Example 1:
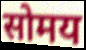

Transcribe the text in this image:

सोमय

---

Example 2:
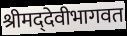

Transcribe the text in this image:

श्रीमद्‌देवीभागवत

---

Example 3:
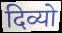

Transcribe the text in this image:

दिव्यो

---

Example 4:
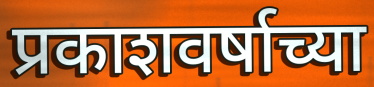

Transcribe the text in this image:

प्रकाशवर्षाच्या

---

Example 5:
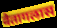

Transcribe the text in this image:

वैतागलास